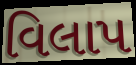
વિલાપ